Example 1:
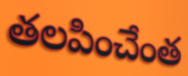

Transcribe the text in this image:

తలపించేంత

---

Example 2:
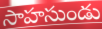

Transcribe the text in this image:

సాహసుండు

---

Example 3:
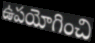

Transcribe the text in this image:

ఉపయోగించి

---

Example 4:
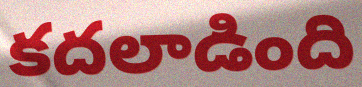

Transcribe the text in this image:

కదలాడింది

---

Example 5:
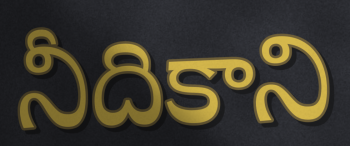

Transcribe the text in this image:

నీదికాని